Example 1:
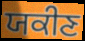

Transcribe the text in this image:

ਯਕੀਣ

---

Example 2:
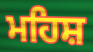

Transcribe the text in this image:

ਮਹਿਸ਼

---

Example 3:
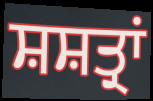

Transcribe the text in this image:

ਸ਼ਸ਼ਤ੍ਰਾਂ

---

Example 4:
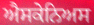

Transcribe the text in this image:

ਐਸਕੇਨਿਅਸ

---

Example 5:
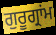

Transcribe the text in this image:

ਗੁਰੂਗ੍ਰਾਂਮ